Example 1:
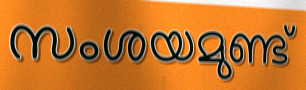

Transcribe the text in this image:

സംശയമുണ്ട്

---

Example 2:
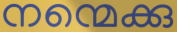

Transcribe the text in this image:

നന്മെക്കു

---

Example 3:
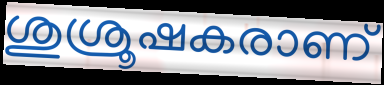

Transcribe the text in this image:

ശുശ്രൂഷകരാണ്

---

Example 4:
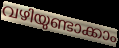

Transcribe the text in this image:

വഴിയുണ്ടാക്കാം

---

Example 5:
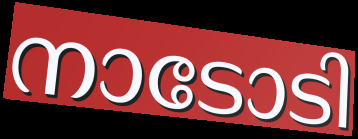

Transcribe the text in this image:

നാടോടി